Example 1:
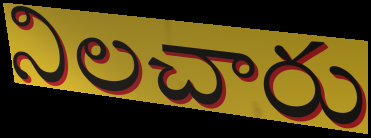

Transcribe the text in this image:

నిలచారు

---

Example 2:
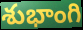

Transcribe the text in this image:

శుభాంగి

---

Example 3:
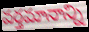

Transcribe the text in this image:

వర్తమానాన్ని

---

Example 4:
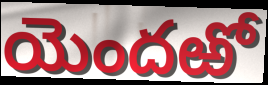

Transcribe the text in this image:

యెందఱో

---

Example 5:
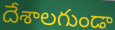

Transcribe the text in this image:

దేశాలగుండా